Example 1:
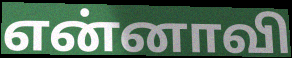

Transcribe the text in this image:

என்னாவி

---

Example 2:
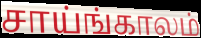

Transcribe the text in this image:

சாய்ங்காலம்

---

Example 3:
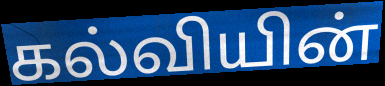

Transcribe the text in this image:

கல்வியின்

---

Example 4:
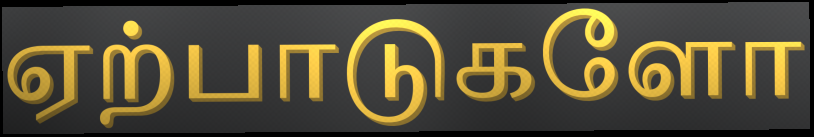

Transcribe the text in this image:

ஏற்பாடுகளோ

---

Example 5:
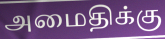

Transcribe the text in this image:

அமைதிக்கு